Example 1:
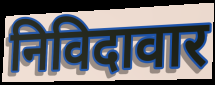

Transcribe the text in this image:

निविदावार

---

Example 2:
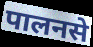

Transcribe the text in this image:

पालनसे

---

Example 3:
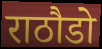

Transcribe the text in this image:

राठौडो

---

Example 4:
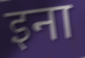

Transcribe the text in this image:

इना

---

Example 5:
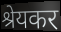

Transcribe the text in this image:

श्रेयकर